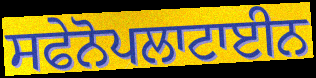
ਸਫੇਨੋਪਲਾਟਾਈਨ